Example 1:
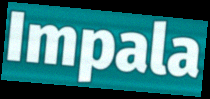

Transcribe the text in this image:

Impala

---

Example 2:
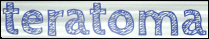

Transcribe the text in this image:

teratoma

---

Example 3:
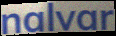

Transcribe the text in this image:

nalvar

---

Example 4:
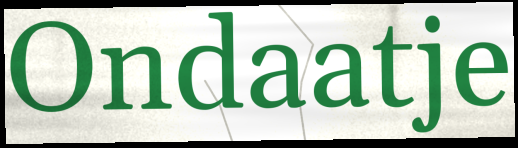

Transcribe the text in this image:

Ondaatje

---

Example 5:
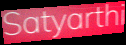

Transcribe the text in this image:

Satyarthi